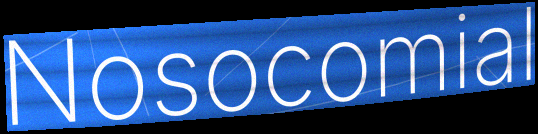
Nosocomial